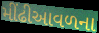
મીંઢીઆવળના